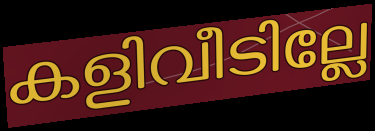
കളിവീടില്ലേ